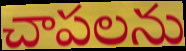
చాపలను